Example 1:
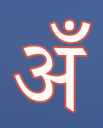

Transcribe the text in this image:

अँ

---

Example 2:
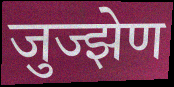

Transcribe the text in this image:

जुज्झेण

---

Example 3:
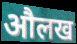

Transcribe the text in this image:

औलख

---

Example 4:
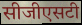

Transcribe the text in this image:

सीजीएसटी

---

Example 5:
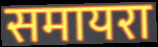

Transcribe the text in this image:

समायरा